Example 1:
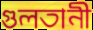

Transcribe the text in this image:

গুলতানী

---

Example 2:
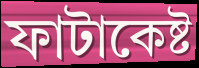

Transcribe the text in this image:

ফাটাকেষ্ট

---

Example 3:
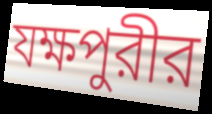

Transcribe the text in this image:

যক্ষপুরীর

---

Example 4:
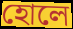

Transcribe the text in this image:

হোলে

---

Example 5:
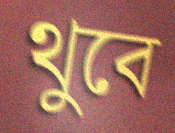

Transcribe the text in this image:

থুবে